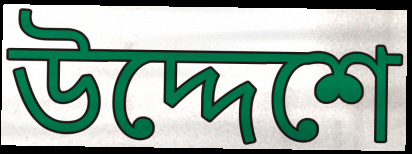
উদ্দেশে